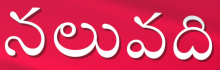
నలువది